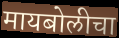
मायबोलीचा